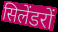
सिलेंडरों